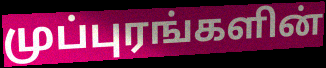
முப்புரங்களின்